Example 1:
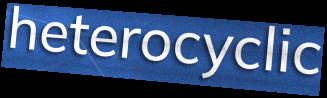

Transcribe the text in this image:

heterocyclic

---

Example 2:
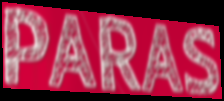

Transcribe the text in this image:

PARAS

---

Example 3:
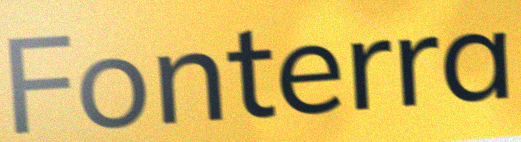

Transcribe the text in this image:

Fonterra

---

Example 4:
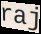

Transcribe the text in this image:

raj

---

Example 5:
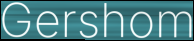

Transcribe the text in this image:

Gershom